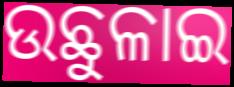
ଉଛୁଳାଇ